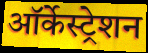
ऑर्केस्ट्रेशन